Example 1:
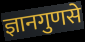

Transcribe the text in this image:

ज्ञानगुणसे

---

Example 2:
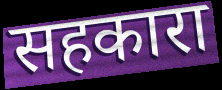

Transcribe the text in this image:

सहकारा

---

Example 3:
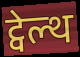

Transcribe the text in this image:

ट्वेल्थ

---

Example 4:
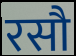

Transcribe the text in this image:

रसौ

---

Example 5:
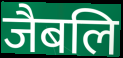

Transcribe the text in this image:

जैबलि